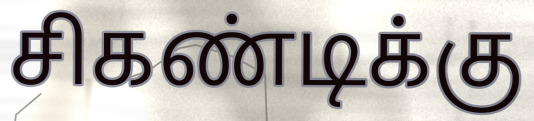
சிகண்டிக்கு